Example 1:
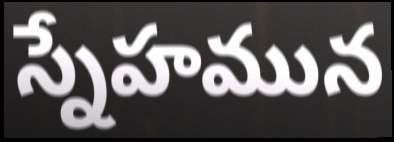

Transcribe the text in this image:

స్నేహమున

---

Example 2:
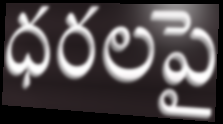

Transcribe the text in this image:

ధరలపై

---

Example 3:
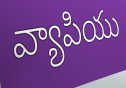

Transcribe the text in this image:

వ్యాపియు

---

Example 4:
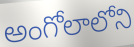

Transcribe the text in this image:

అంగోలాలోని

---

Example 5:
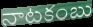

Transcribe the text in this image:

నాటకంబు